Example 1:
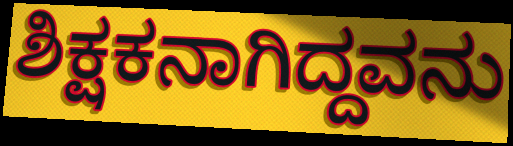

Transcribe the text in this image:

ಶಿಕ್ಷಕನಾಗಿದ್ದವನು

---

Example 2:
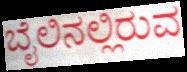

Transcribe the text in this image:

ಬೈಲಿನಲ್ಲಿರುವ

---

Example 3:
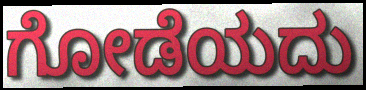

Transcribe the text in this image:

ಗೋಡೆಯದು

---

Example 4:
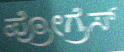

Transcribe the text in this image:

ಪ್ರೋಗ್ರೆಸ್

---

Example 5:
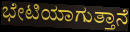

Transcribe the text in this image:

ಭೇಟಿಯಾಗುತ್ತಾನೆ